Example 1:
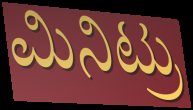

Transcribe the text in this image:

ಮಿನಿಟ್ರು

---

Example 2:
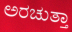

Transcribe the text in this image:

ಅರಚುತ್ತಾ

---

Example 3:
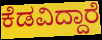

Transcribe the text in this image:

ಕೆಡವಿದ್ದಾರೆ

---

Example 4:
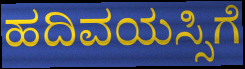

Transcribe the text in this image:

ಹದಿವಯಸ್ಸಿಗೆ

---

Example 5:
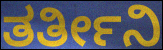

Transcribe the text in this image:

ತರ್ತೀನಿ